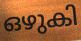
ഒഴുകി